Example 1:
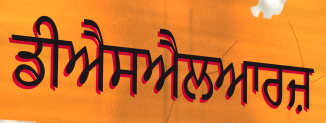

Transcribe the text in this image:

ਡੀਐਸਐਲਆਰਜ਼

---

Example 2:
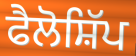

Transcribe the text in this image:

ਫੈਲੋਸ਼ਿੱਪ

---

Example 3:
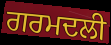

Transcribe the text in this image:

ਗਰਮਦਲੀ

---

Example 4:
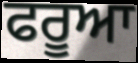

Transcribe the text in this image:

ਫਰੂਆ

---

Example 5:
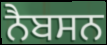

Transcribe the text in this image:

ਨੈਬਸਨ